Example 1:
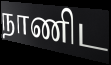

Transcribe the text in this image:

நாணிட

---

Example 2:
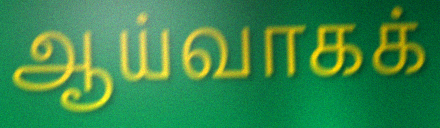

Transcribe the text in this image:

ஆய்வாகக்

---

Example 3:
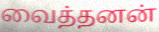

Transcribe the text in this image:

வைத்தனன்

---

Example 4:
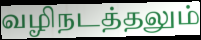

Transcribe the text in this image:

வழிநடத்தலும்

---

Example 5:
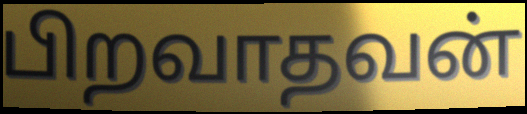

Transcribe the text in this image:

பிறவாதவன்